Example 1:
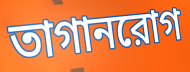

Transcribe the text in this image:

তাগানরোগ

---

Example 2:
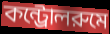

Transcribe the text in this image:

কন্ট্রোলরুমে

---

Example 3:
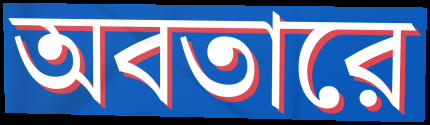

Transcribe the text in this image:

অবতারে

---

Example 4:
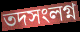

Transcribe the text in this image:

তদসংলগ্ন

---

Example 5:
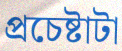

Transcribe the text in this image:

প্রচেষ্টাটা